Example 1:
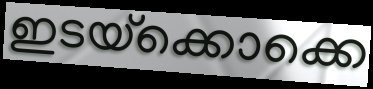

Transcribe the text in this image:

ഇടയ്‌ക്കൊക്കെ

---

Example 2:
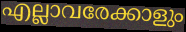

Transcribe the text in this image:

എല്ലാവരേക്കാളും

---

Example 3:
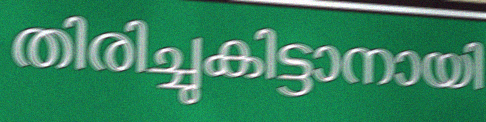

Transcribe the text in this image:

തിരിച്ചുകിട്ടാനായി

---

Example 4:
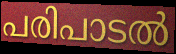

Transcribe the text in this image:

പരിപാടൽ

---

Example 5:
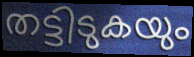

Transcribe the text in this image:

തട്ടിടുകയും